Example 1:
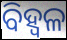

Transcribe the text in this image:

ବିହ୍ଵଳ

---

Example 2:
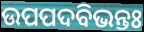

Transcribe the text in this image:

ଉପପଦବିଭନ୍ତଃ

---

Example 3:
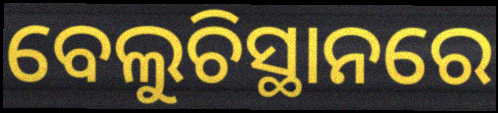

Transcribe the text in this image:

ବେଲୁଚିସ୍ଥାନରେ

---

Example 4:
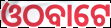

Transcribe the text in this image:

ଓଠବାଟେ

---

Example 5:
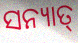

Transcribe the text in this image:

ସନ୍ୟାତ୍